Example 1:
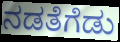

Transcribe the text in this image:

ನಡತೆಗೆಡು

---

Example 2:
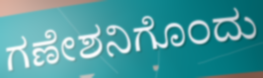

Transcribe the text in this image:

ಗಣೇಶನಿಗೊಂದು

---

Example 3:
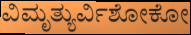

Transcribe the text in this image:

ವಿಮೃತ್ಯುರ್ವಿಶೋಕೋ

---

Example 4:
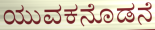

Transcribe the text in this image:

ಯುವಕನೊಡನೆ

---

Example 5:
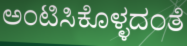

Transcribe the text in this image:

ಅಂಟಿಸಿಕೊಳ್ಳದಂತೆ